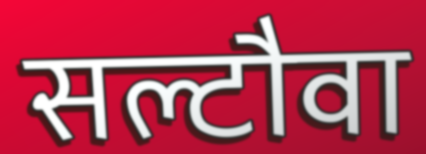
सल्टौवा